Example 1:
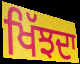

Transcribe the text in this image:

ਖਿੱਝਦਾ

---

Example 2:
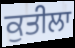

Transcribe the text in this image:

ਕੁਤੀਲਾ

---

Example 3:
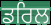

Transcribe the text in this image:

ਡਰਿਲ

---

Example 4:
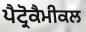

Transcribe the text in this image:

ਪੈਟ੍ਰੋਕੈਮੀਕਲ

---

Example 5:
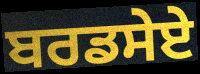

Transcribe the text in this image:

ਬਰਡਸੇਏ